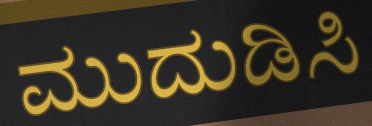
ಮುದುಡಿಸಿ